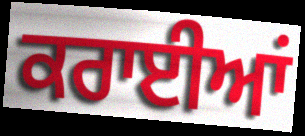
ਕਰਾਈਆਂ